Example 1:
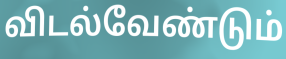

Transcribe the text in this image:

விடல்வேண்டும்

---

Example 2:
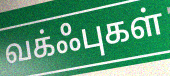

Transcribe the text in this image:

வக்ஃபுகள்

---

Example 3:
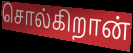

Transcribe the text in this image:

சொல்கிறான்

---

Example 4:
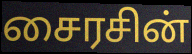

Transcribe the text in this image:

சைரசின்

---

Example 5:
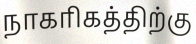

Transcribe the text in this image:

நாகரிகத்திற்கு